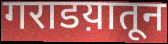
गराडय़ातून